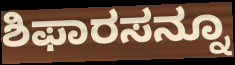
ಶಿಫಾರಸನ್ನೂ